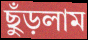
ছুঁড়লাম